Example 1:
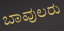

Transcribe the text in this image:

ಬಾವುಲರು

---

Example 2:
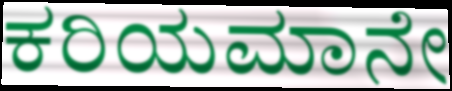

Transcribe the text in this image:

ಕರಿಯಮಾನೇ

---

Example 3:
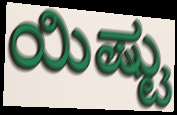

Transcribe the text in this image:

ಯಿಷ್ಟು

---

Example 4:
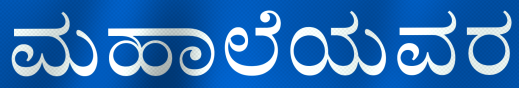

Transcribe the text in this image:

ಮಹಾಲೆಯವರ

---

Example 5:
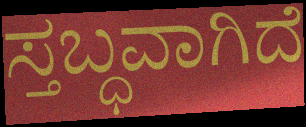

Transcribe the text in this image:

ಸ್ತಬ್ಧವಾಗಿದೆ